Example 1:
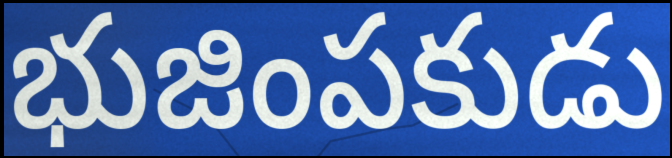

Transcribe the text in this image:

భుజింపకుడు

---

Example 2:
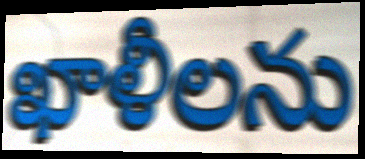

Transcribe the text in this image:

ఖాళీలను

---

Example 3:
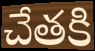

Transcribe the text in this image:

చేతకి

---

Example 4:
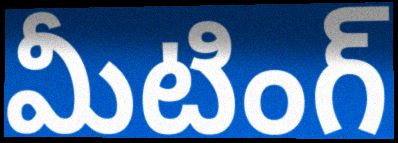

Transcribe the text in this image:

మీటింగ్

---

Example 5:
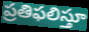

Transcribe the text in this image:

ప్రతిఫలిస్తూ